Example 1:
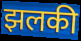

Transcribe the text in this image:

झलकी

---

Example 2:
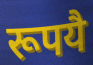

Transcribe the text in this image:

रूपयै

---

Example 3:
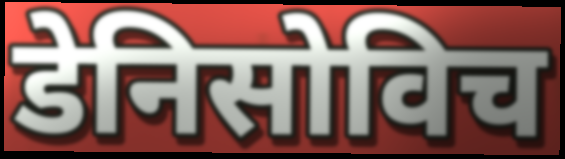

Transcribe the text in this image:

डेनिसोविच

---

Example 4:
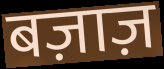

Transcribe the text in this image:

बज़ाज़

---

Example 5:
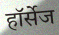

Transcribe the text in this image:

हॉर्सेज